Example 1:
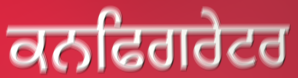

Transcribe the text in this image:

ਕਨਫਿਗਰੇਟਰ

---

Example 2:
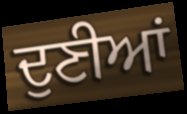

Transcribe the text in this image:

ਦੁਣੀਆਂ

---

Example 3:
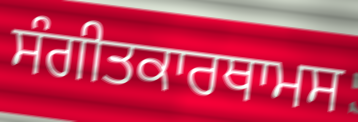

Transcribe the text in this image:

ਸੰਗੀਤਕਾਰਥਾਮਸ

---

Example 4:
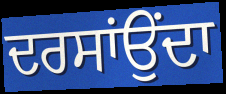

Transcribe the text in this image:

ਦਰਸਾਂਉਂਦਾ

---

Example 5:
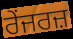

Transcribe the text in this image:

ਰੇਂਜਰਜ਼